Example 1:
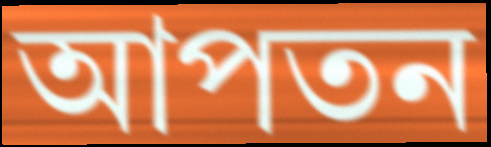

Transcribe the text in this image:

আপতন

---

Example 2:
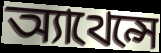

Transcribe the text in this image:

অ্যাথেন্সে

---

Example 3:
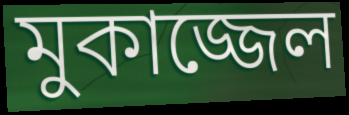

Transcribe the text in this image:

মুকাজ্জেল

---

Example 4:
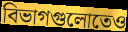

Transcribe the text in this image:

বিভাগগুলোতেও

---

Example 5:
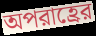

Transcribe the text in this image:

অপরাহ্রের